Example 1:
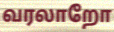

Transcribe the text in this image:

வரலாறோ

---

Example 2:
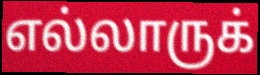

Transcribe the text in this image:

எல்லாருக்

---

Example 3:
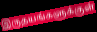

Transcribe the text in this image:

இருதயங்களுக்குள்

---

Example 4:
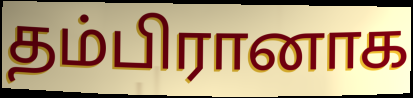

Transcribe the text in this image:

தம்பிரானாக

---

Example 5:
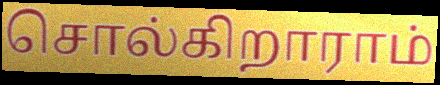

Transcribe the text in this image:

சொல்கிறாராம்